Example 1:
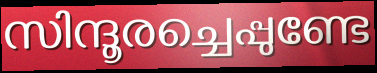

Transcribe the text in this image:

സിന്ദൂരച്ചെപ്പുണ്ടേ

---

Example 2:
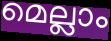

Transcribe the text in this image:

മെല്ലാം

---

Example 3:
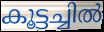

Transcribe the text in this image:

കൂട്ടച്ചിൽ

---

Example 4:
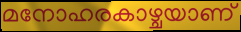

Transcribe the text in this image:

മനോഹരകാഴ്ചയാണ്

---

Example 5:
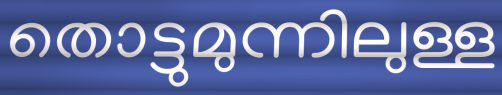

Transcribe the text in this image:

തൊട്ടുമുന്നിലുള്ള